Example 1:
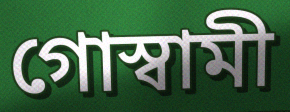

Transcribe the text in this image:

গোস্বামী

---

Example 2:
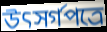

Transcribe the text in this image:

উৎসর্গপত্রে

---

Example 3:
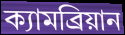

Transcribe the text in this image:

ক্যামব্রিয়ান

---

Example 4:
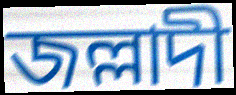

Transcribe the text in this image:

জল্লাদী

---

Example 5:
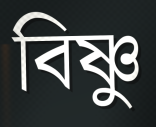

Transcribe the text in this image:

বিষ্ণু